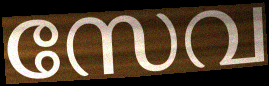
സേവ